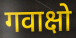
गवाक्षो